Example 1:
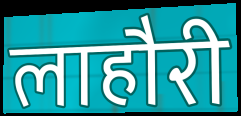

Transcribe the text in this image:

लाहौरी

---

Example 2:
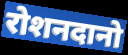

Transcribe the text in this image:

रोशनदानो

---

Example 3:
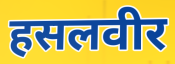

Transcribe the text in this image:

हसलवीर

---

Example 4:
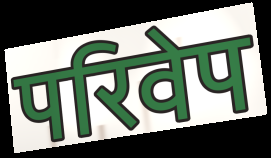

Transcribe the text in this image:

परिवेप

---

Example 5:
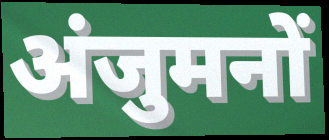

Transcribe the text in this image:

अंजुमनों